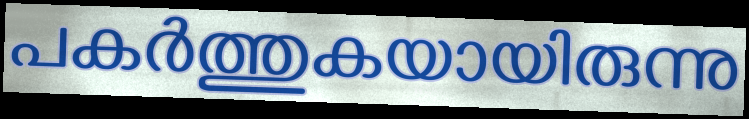
പകർത്തുകയായിരുന്നു